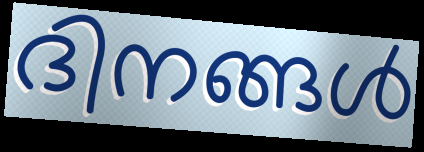
ദിനങ്ങൾ